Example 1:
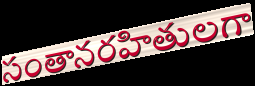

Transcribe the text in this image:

సంతానరహితులగా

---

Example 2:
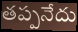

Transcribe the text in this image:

తప్పనేదు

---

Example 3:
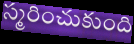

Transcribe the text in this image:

స్మరించుకుంది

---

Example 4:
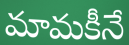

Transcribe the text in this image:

మామకీనే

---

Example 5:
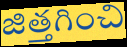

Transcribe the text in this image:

జిత్తగించి